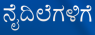
ನೈದಿಲೆಗಳಿಗೆ